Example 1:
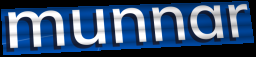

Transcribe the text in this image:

munnar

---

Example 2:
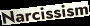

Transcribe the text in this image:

Narcissism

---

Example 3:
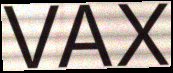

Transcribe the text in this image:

VAX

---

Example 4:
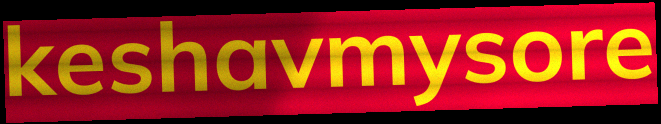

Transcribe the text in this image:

keshavmysore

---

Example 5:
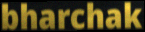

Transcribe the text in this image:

bharchak